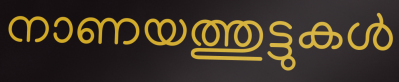
നാണയത്തുട്ടുകൾ